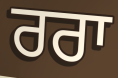
ਰਰਾ